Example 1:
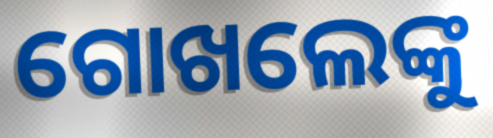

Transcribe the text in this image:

ଗୋଖଲେଙ୍କୁ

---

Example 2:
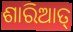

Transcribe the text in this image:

ଶାରିଆତ୍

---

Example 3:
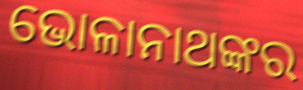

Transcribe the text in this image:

ଭୋଳାନାଥଙ୍କର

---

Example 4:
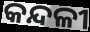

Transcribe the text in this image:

କନ୍ଦଳୀ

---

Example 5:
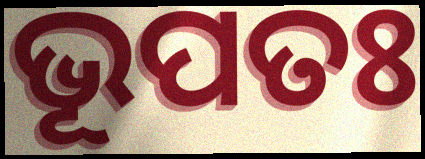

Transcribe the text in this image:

ଭୂପତଃ